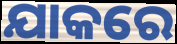
ଯାକରେ